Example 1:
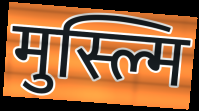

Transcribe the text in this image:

मुस्ल्मि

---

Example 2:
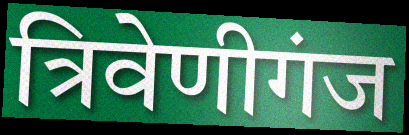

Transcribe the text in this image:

त्रिवेणीगंज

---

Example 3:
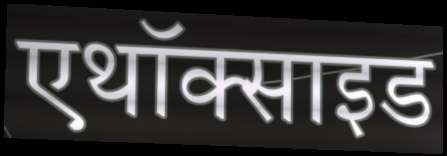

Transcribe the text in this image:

एथॉक्साइड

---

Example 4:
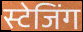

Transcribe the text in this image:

स्टेजिंग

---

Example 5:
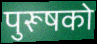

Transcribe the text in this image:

पुरूषको